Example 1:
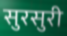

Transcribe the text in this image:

सुरसुरी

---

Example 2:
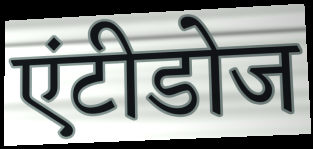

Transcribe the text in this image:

एंटीडोज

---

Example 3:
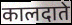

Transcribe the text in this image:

कालदाते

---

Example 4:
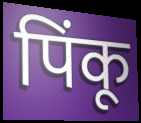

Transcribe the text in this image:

पिंकू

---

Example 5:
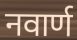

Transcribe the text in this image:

नवार्ण